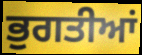
ਭੁਗਤੀਆਂ